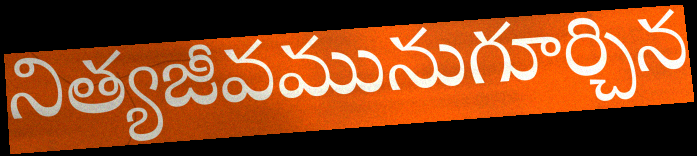
నిత్యజీవమునుగూర్చిన